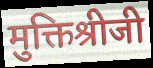
मुक्तिश्रीजी